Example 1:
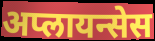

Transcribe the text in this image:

अप्लायन्सेस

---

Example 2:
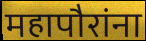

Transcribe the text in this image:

महापौरांना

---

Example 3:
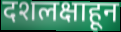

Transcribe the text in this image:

दशलक्षाहून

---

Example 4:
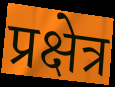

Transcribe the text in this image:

प्रक्षेत्र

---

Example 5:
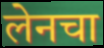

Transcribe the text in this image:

लेनचा